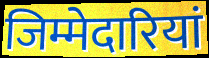
जिम्मेदारियां